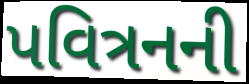
પવિત્રનની